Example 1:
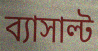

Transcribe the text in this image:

ব্যাসাল্ট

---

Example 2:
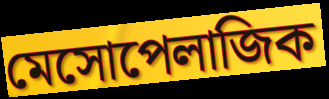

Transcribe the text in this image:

মেসোপেলাজিক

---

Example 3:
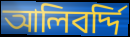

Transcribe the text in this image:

আলিবর্দ্দি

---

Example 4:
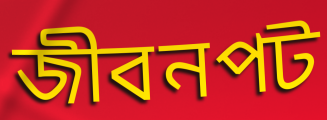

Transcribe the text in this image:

জীবনপট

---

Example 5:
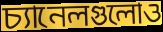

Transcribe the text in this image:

চ্যানেলগুলোও